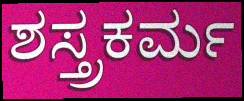
ಶಸ್ತ್ರಕರ್ಮ